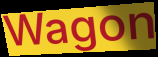
Wagon